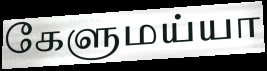
கேளுமய்யா